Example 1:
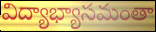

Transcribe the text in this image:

విద్యాభ్యాసమంతా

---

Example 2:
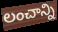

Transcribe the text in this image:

లంచాన్ని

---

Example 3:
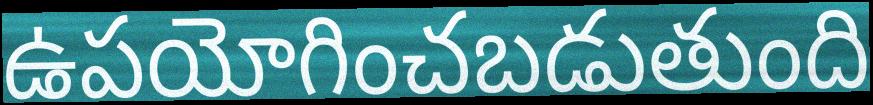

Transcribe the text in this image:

ఉపయోగించబడుతుంది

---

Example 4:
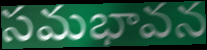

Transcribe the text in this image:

సమభావన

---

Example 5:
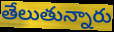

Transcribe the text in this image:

తేలుతున్నారు